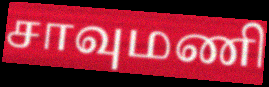
சாவுமணி